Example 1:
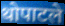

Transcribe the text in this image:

थोपाटले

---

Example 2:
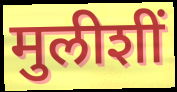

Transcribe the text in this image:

मुलीशीं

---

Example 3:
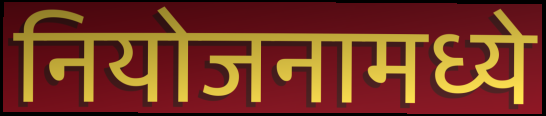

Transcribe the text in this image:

नियोजनामध्ये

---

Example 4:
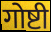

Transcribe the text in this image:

गोष्टी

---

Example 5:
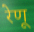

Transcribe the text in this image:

रेणू